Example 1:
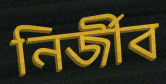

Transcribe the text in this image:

নিৰ্জীব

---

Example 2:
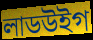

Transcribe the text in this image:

লাডউইগ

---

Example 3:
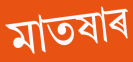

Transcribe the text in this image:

মাতষাৰ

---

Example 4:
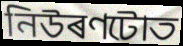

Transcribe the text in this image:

নিউৰণটোত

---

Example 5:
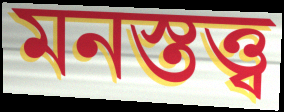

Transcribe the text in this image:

মনস্তত্ত্ব